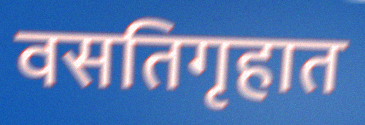
वसतिगृहात